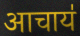
आचाय॑